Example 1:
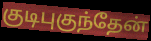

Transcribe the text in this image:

குடிபுகுந்தேன்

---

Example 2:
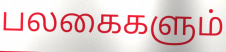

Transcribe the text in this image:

பலகைகளும்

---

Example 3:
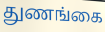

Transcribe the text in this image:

துணங்கை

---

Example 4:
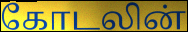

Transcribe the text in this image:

கோடலின்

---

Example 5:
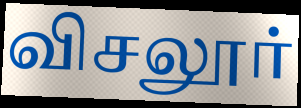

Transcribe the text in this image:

விசலூர்